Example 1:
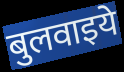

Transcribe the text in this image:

बुलवाइये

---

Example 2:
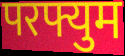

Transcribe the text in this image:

परफ्युम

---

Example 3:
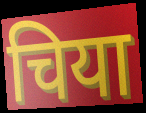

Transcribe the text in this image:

चिया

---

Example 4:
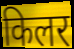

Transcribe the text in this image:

किलर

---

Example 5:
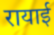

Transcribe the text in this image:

रायाई